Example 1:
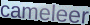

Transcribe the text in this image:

cameleer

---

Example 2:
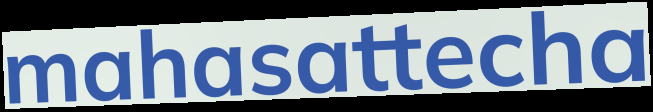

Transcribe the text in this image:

mahasattecha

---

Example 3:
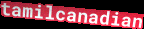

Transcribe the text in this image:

tamilcanadian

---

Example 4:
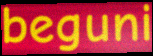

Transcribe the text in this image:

beguni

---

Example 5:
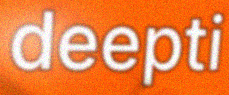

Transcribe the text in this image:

deepti